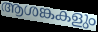
ആശങ്കകളും